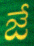
జే